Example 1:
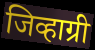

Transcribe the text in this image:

जिव्हाग्री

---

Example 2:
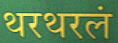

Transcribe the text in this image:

थरथरलं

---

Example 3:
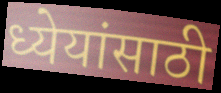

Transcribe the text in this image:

ध्येयांसाठी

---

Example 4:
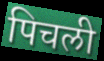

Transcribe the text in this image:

पिचली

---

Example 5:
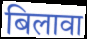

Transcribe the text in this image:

बिलावा